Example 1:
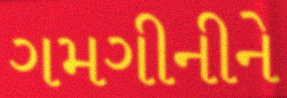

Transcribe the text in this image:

ગમગીનીને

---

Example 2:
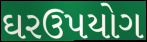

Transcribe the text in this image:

ઘરઉપયોગ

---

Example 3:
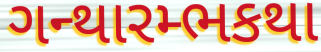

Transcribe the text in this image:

ગન્થારમ્ભકથા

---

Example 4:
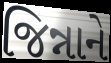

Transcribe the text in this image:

જિન્નાને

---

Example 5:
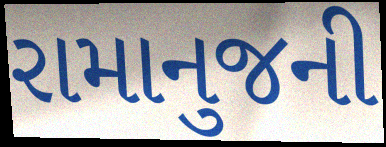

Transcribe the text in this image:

રામાનુજની